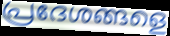
പ്രദേശങ്ങളെ